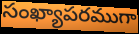
సంఖ్యాపరముగా